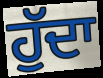
ਹੁੱਦਾ